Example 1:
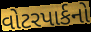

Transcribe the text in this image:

વોટરપાર્કનો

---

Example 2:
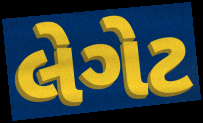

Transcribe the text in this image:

લેગેટ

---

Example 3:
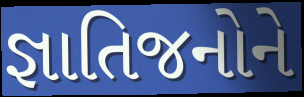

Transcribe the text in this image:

જ્ઞાતિજનોને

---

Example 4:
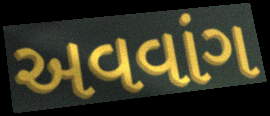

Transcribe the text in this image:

અવવાંગ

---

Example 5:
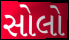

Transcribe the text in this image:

સોલો